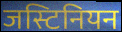
जस्टिनियन